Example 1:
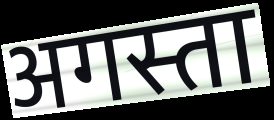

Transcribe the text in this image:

अगस्ता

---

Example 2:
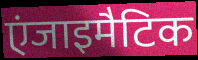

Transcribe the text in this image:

एंजाइमैटिक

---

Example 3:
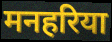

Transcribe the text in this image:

मनहरिया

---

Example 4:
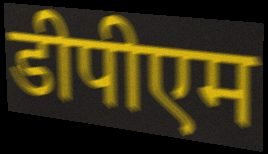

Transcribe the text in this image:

डीपीएम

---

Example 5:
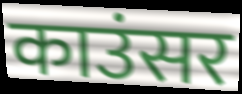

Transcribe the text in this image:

काउंसर